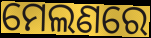
ମେଲଣରେ